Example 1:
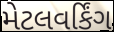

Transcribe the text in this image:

મેટલવર્કિંગ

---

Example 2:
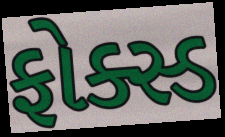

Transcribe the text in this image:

ફોક્સ્ડ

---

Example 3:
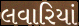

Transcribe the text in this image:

લવારિયાં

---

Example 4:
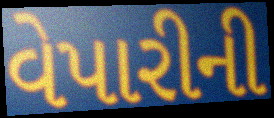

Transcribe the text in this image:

વેપારીની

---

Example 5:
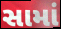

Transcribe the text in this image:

સામાં